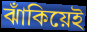
ঝাঁকিয়েই